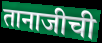
तानाजीची